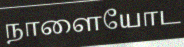
நாளையோட